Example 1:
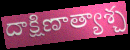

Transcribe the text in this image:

దాక్షిణాత్యాశ్చ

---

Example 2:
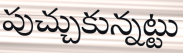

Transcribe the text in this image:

పుచ్చుకున్నట్టు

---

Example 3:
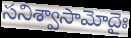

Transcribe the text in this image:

సనిశ్వాసామోదైః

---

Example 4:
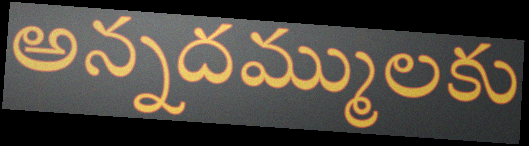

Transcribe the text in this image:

అన్నదమ్ములకు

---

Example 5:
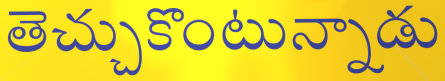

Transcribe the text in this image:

తెచ్చుకొంటున్నాడు